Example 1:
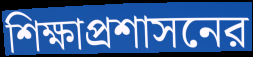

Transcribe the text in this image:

শিক্ষাপ্রশাসনের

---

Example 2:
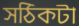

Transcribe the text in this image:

সঠিকটা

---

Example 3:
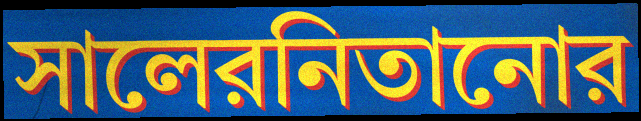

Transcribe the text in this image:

সালেরনিতানোর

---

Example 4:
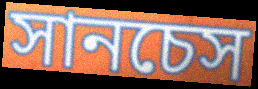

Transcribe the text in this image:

সানচেস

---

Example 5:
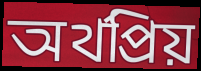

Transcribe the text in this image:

অর্থপ্রিয়